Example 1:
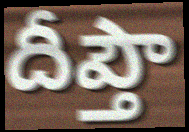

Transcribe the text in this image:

దీప్తౌ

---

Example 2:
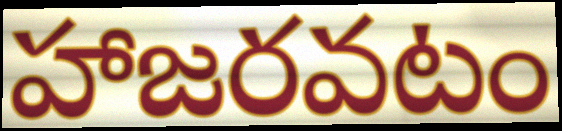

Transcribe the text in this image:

హాజరవటం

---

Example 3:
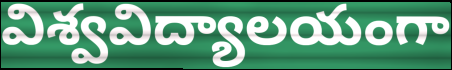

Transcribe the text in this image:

విశ్వవిద్యాలయంగా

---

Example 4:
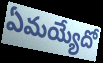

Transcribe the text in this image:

ఏమయ్యేదో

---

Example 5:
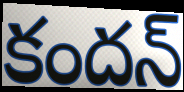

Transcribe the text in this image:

కందన్